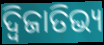
ଦ୍ବିଜାତିଭ୍ୟ